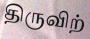
திருவிற்